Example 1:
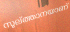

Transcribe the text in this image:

സുല്ത്താനയാണ്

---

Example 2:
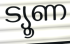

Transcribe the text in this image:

ട്യൂണ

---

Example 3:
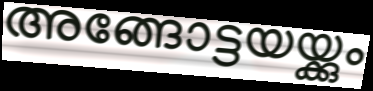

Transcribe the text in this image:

അങ്ങോട്ടയയ്ക്കും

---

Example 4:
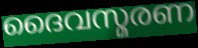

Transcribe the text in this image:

ദൈവസ്മരണ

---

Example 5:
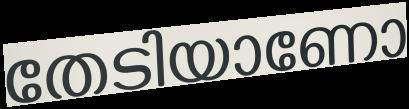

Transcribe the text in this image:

തേടിയാണോ